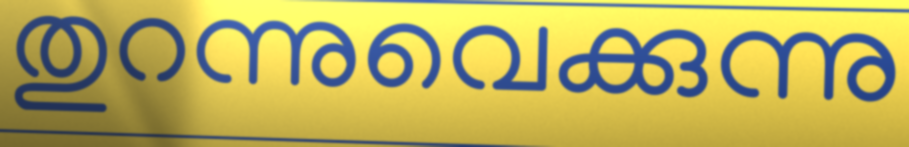
തുറന്നുവെക്കുന്നു